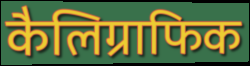
कैलिग्राफिक